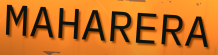
MAHARERA